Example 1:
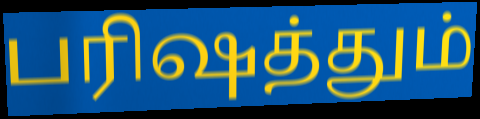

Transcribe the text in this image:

பரிஷத்தும்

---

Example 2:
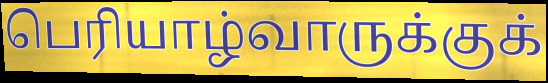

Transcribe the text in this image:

பெரியாழ்வாருக்குக்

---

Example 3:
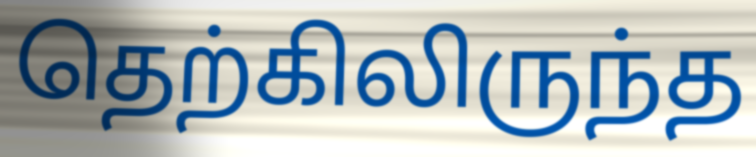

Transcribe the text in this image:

தெற்கிலிருந்த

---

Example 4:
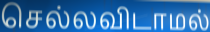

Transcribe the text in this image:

செல்லவிடாமல்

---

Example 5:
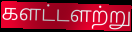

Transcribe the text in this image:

களட்டளற்று